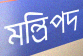
মন্ত্রিপদ